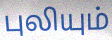
புலியும்